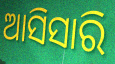
ଆସିସାରି